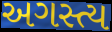
અગસ્ત્ય